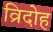
व्रिदोह